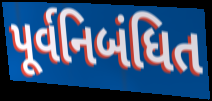
પૂર્વનિબંધિત